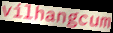
vilhangcum